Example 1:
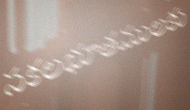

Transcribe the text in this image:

సకలభూతములకు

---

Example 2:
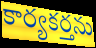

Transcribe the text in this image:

కార్యకర్తను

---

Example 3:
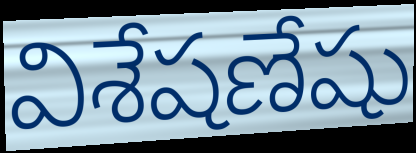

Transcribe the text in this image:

విశేషణేషు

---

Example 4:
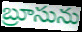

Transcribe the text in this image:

బ్రూసును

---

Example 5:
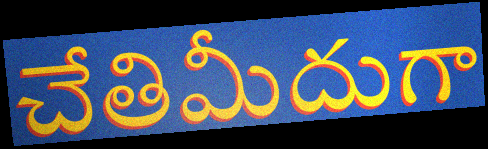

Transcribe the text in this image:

చేతిమీదుగా